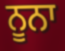
ਨੂਨਾ